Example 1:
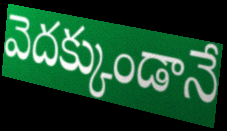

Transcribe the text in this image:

వెదక్కుండానే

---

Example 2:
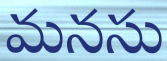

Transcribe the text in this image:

మనసు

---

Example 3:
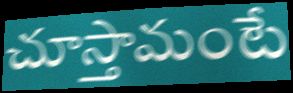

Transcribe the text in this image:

చూస్తామంటే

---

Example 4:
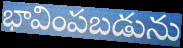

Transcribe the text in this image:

భావింపబడును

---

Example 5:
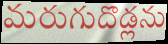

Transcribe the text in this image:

మరుగుదొడ్లను